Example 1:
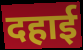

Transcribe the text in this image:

दहाई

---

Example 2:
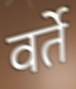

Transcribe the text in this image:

वर्ते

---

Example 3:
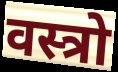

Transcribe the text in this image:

वस्त्रो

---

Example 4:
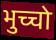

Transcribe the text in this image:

भुच्चो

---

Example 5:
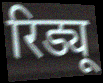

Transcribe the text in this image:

रिड्यू